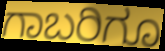
ಗಾಬರಿಗೂ